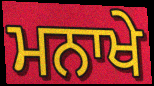
ਮਨਾਖੇ